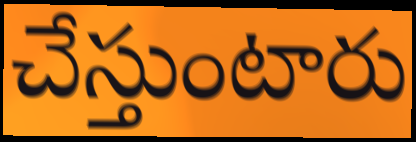
చేస్తుంటారు